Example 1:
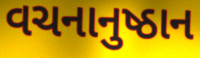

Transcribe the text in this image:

વચનાનુષ્ઠાન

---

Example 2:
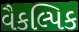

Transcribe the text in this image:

વૈકલ્પિક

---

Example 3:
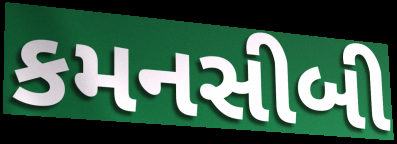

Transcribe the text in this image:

કમનસીબી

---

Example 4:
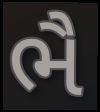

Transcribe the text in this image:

ભૈ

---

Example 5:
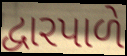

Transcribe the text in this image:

દ્વારપાળે